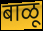
बाळू